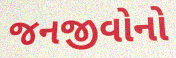
જનજીવોનો